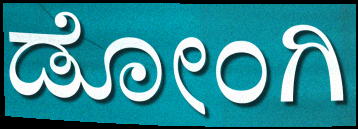
ಡೋಂಗಿ